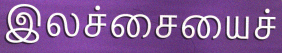
இலச்சையைச்